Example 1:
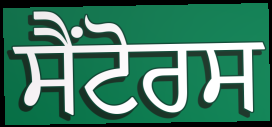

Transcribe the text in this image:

ਸੈਂਟੋਰਸ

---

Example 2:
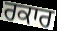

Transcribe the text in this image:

ਰਕਾਰ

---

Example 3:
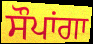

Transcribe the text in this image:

ਸੌਪਾਂਗਾ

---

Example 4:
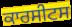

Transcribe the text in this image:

ਕਾਰਸੀਟਸ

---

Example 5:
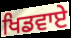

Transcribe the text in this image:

ਖਿਡਵਾਏ